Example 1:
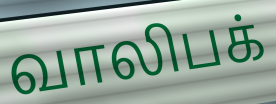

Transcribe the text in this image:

வாலிபக்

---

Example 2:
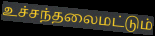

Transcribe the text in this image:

உச்சந்தலைமட்டும்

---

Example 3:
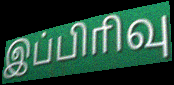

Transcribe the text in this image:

இப்பிரிவு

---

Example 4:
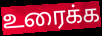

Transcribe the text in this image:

உரைக்க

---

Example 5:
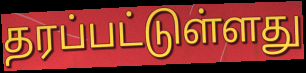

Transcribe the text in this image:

தரப்பட்டுள்ளது